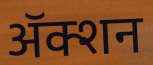
ॲक्शन